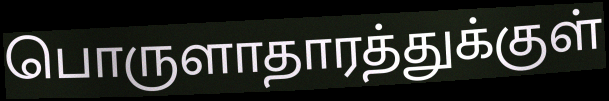
பொருளாதாரத்துக்குள்